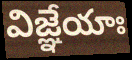
విజ్ఞేయాః